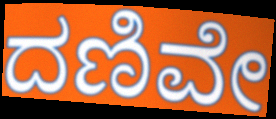
ದಣಿವೇ